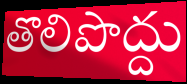
తొలిపొద్దు